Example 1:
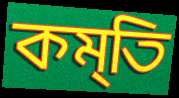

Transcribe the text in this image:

কম্‌তি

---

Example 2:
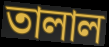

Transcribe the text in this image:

তালাল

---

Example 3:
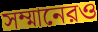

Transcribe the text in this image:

সম্মানেরও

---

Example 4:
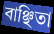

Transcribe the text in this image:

বাঞ্ছিতা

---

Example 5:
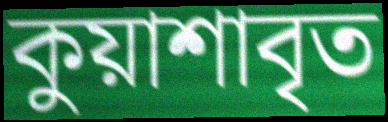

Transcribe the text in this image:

কুয়াশাবৃত